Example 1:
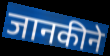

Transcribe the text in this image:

जानकीने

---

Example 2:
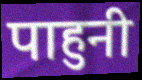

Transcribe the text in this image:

पाहुनी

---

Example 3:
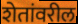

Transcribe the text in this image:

शेतांवरील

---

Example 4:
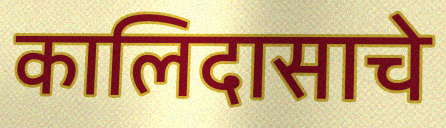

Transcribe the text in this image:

कालिदासाचे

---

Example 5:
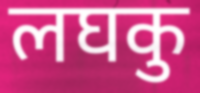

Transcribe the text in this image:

लघकु